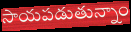
సాయపడుతున్నాం